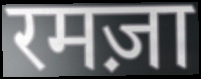
रमज़ा